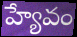
హ్యేవం